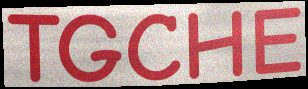
TGCHE